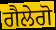
ਗੈਲੇਗੋ